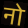
नो